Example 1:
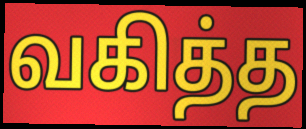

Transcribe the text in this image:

வகித்த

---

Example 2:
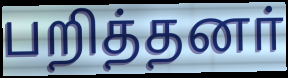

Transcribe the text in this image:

பறித்தனர்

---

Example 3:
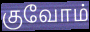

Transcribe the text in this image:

குவோம்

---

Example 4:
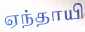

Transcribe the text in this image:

ஏந்தாயி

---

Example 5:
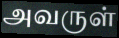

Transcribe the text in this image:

அவருள்